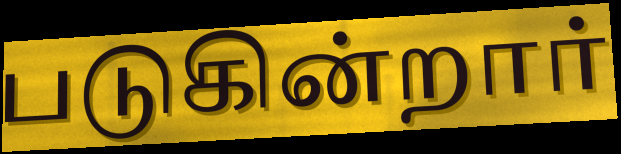
படுகின்றார்